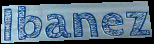
Ibanez